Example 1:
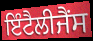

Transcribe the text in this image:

ਇੰਟੈਲੀਜੈਂਸ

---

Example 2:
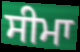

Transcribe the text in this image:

ਸੀਮਾ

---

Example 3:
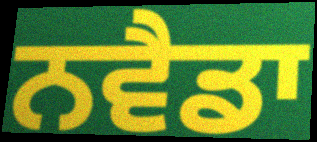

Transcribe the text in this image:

ਨਵੈਡਾ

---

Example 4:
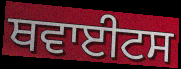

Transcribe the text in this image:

ਥਵਾਈਟਸ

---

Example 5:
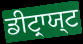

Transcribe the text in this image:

ਡੀਟ੍ਰਾਯ੍ਟ